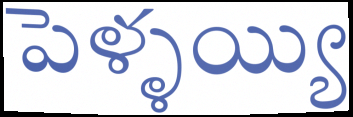
పెళ్ళయ్యి